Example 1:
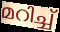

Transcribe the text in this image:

മറിച്ച്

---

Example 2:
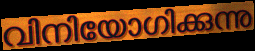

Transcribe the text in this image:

വിനിയോഗിക്കുന്നു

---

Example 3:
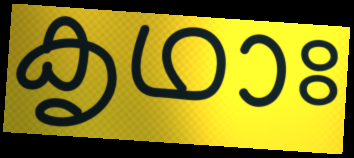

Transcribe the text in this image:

കൃഥാഃ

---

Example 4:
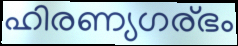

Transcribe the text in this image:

ഹിരണ്യഗര്ഭം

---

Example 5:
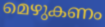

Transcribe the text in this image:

മെഴുകണം